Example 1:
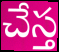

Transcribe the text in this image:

చేస్త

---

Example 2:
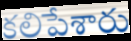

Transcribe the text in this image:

కలిపేశారు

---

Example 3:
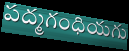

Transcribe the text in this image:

పద్మగంధియగు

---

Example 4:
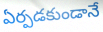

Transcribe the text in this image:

ఏర్పడకుండానే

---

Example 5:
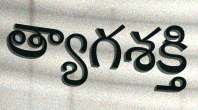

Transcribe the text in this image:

త్యాగశక్తి